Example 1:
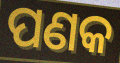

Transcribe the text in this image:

ପଣକ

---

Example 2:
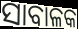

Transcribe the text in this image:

ସାବାଳକ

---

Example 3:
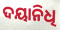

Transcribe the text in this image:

ଦୟାନିଧି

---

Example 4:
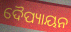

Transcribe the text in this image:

ଦୈପ୍ୟାୟନ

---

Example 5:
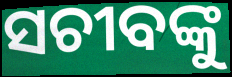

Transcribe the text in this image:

ସଚୀବଙ୍କୁ